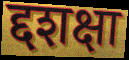
द्दशक्षा